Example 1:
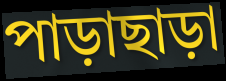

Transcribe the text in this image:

পাড়াছাড়া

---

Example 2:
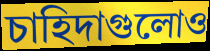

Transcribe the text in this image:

চাহিদাগুলোও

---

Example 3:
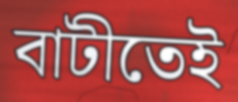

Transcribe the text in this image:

বাটীতেই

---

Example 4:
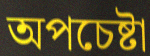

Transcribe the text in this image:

অপচেষ্টা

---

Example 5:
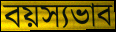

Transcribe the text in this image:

বয়স্যভাব